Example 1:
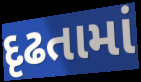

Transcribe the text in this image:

દૃઢતામાં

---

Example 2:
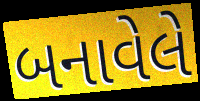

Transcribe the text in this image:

બનાવેલે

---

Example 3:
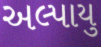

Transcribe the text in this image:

અલ્પાયુ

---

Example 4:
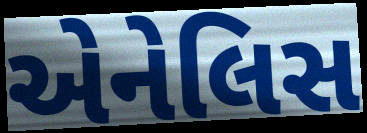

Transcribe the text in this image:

એનેલિસ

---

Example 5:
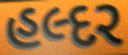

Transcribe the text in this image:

હલ્દર